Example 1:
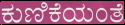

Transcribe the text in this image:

ಕುಣಿಕೆಯಂತೆ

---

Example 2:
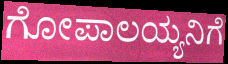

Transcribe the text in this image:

ಗೋಪಾಲಯ್ಯನಿಗೆ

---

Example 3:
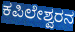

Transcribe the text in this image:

ಕಪಿಲೇಶ್ವರನ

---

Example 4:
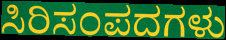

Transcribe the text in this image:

ಸಿರಿಸಂಪದಗಳು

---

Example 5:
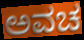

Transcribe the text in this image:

ಅವಚ